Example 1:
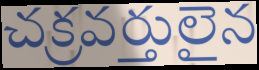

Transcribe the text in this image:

చక్రవర్తులైన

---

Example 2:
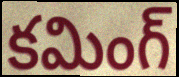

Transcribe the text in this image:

కమింగ్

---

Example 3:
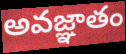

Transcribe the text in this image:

అవజ్ఞాతం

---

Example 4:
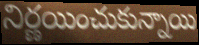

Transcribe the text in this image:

నిర్ణయించుకున్నాయి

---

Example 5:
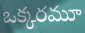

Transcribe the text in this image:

ఒక్కరమూ